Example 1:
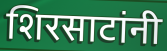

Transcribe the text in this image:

शिरसाटांनी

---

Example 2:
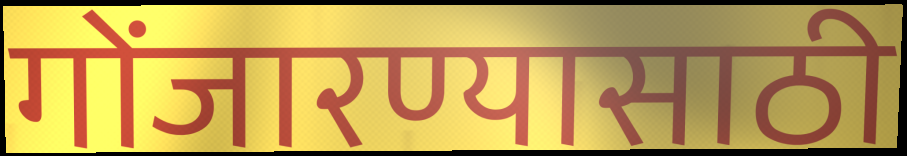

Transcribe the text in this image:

गोंजारण्यासाठी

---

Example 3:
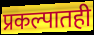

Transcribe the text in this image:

प्रकल्पातही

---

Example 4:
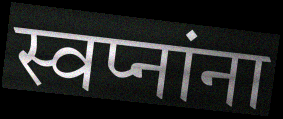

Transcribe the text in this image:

स्वप्नांना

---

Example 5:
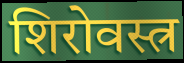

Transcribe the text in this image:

शिरोवस्त्र